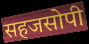
सहजसोपी